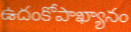
ఉదంకోపాఖ్యానం